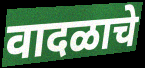
वादळाचे